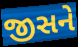
જીસને